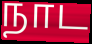
நாட